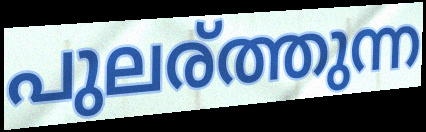
പുലര്ത്തുന്ന